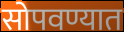
सोपवण्यात